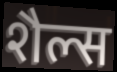
शैल्स